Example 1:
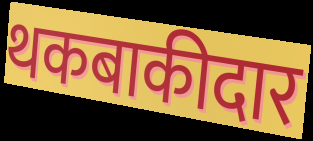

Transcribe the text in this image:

थकबाकीदार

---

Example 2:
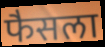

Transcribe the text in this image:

फैसला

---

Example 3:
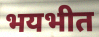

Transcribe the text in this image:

भयभीत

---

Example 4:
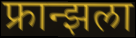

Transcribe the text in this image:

फ्रान्झला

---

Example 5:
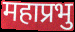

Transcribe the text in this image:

महाप्रभु